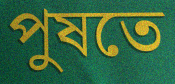
পুষতে